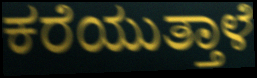
ಕರೆಯುತ್ತಾಳೆ